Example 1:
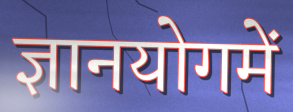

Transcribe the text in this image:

ज्ञानयोगमें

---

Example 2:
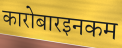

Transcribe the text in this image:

कारोबारइनकम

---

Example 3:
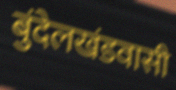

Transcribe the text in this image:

बुंदेलखंडवासी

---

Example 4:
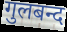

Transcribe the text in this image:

गुलबन्द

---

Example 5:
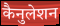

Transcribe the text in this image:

कैनुलेशन